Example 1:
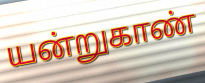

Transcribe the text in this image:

யன்றுகாண்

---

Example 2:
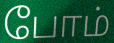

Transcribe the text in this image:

போம்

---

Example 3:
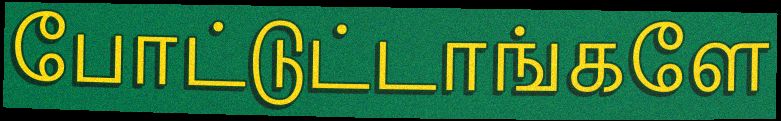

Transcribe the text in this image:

போட்டுட்டாங்களே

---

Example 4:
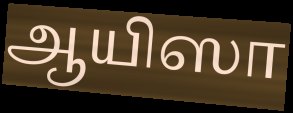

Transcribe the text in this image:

ஆயிஸா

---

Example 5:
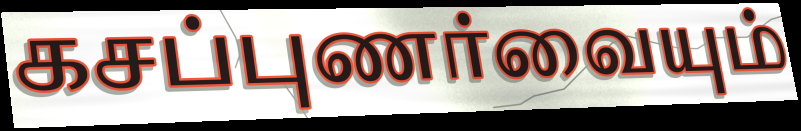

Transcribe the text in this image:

கசப்புணர்வையும்